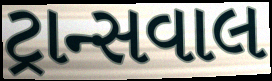
ટ્રાન્સવાલ